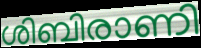
ശിബിരാണി